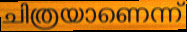
ചിത്രയാണെന്ന്